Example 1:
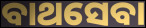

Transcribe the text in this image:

ବାଥସେବା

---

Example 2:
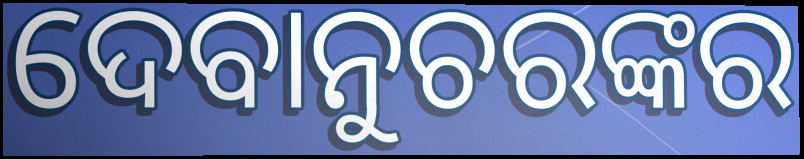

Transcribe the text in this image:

ଦେବାନୁଚରଙ୍କର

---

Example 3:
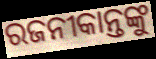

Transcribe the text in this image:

ରଜନୀକାନ୍ତଙ୍କୁ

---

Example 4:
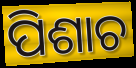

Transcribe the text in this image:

ପିଶାଚ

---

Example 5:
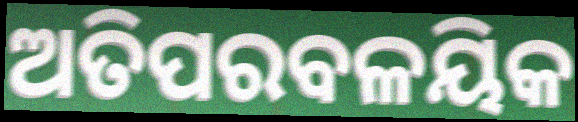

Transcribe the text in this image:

ଅତିପରବଳୟିକ